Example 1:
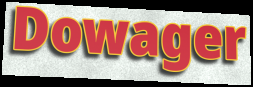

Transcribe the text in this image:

Dowager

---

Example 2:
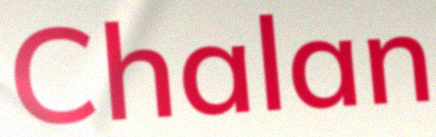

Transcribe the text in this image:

Chalan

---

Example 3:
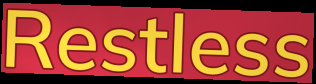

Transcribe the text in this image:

Restless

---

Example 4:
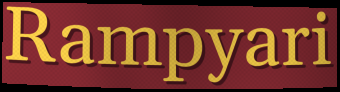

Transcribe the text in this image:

Rampyari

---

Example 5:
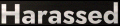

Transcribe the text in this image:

Harassed